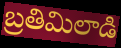
బ్రతిమిలాడి